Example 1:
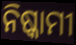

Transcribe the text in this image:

ନିଷ୍କାମୀ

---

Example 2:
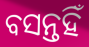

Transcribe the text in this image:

ବସନ୍ତହିଁ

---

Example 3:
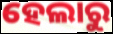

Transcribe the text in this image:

ହେଲାରୁ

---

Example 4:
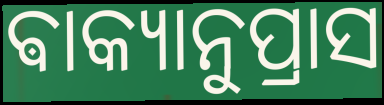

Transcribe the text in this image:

ଵାକ୍ୟାନୁପ୍ରାସ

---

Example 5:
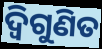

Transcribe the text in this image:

ଦ୍ଵିଗୁଣିତ